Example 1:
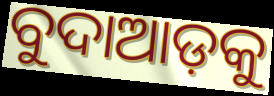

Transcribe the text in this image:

ବୁଦାଆଡ଼କୁ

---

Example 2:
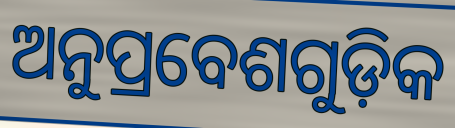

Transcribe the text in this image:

ଅନୁପ୍ରବେଶଗୁଡ଼ିକ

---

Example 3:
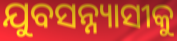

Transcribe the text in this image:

ଯୁବସନ୍ନ୍ୟାସୀକୁ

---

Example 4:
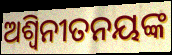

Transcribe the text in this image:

ଅଶ୍ୱିନୀତନୟଙ୍କ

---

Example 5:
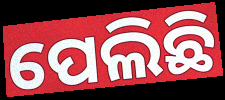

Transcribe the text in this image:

ପେଲିଛି